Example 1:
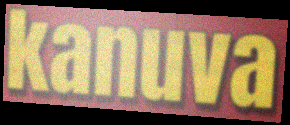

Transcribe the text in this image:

kanuva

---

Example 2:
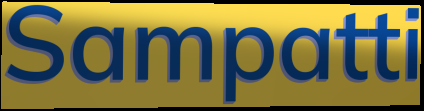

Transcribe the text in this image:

Sampatti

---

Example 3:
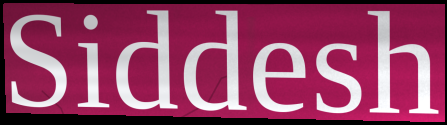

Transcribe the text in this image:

Siddesh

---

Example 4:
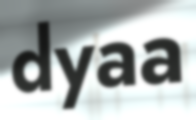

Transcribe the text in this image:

dyaa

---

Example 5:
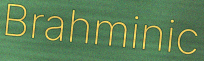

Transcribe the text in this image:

Brahminic